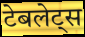
टेबलेट्स